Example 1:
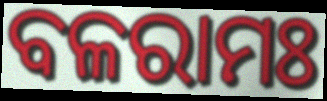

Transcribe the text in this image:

ବଳରାମଃ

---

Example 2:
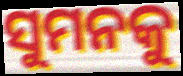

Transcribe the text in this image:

ସୁମନକୁ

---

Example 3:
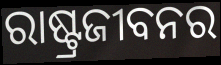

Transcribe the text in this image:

ରାଷ୍ଟ୍ରଜୀବନର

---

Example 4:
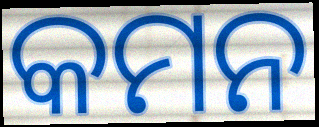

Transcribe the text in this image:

କମନ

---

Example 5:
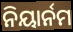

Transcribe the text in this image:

ନିୟାର୍ନମ